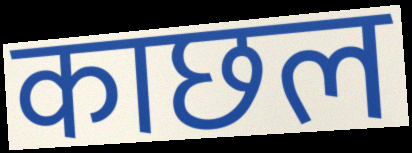
काछल